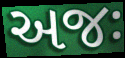
અજઃ